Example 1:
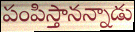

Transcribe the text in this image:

పంపిస్తానన్నాడు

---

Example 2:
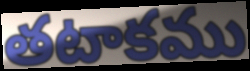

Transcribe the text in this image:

తటాకము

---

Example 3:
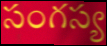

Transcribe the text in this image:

సంగస్య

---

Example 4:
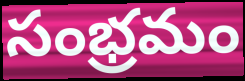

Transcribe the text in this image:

సంభ్రమం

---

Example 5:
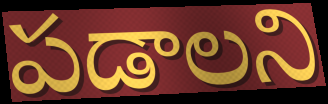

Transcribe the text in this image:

పడాలని